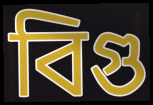
বিগু